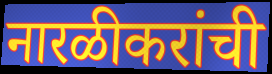
नारळीकरांची